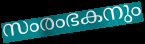
സംരംഭകനും